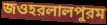
জওহরলালপুরম